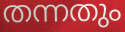
തന്നതും